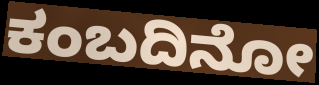
ಕಂಬದಿನೋ